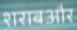
शराबऔर